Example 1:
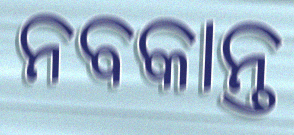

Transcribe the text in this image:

ନବକାନ୍ତ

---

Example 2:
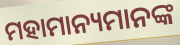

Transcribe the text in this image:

ମହାମାନ୍ୟମାନଙ୍କ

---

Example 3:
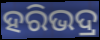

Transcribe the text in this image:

ହରିଭଦ୍ର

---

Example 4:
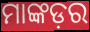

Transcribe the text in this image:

ମାଙ୍କଡ଼ର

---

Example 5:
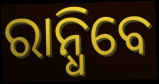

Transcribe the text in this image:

ରାନ୍ଧିବେ